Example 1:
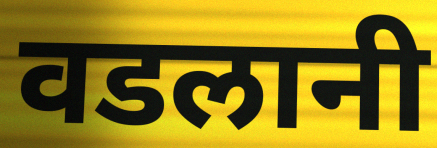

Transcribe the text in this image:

वडलानी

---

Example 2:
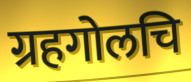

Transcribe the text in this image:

ग्रहगोलचि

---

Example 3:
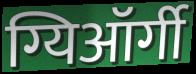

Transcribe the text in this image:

ग्यिऑर्गी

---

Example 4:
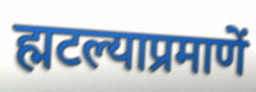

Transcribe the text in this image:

ह्मटल्याप्रमाणें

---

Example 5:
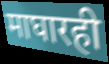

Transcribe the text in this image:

माघारही